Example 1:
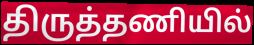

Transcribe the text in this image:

திருத்தணியில்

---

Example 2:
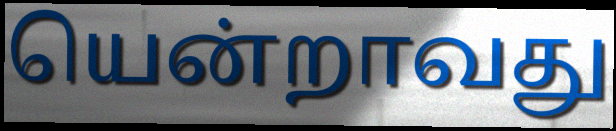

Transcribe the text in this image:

யென்றாவது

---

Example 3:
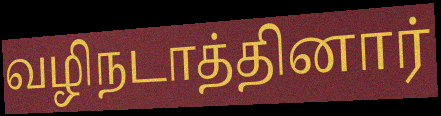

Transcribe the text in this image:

வழிநடாத்தினார்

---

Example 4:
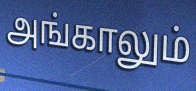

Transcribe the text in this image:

அங்காலும்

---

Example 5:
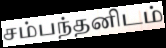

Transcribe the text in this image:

சம்பந்தனிடம்